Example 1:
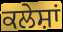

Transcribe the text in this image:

ਕਲੇਸ਼ਾਂ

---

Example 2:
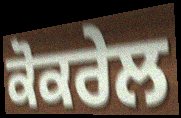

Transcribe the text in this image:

ਕੋਕਰੇਲ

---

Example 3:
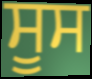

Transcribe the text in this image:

ਸੂਸ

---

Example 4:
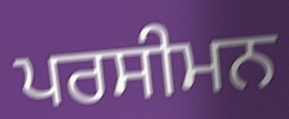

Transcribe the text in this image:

ਪਰਸੀਮਨ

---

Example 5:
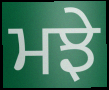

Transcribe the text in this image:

ਮਝੇ